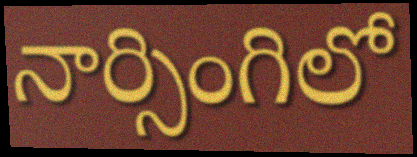
నార్సింగిలో